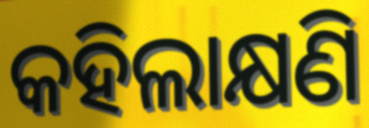
କହିଲାକ୍ଷଣି